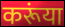
करूंया